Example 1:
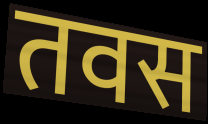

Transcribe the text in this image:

तवस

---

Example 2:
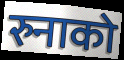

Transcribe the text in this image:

रुनाको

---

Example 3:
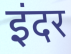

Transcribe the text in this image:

इंदर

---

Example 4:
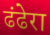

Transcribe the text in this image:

ढंढेरा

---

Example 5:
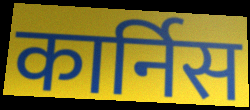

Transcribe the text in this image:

कार्निस